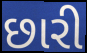
છારી